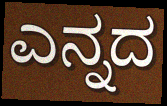
ಎನ್ನದ